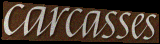
carcasses